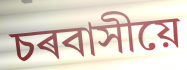
চৰবাসীয়ে